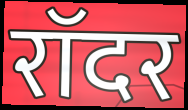
रॉदर